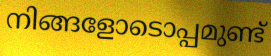
നിങ്ങളോടൊപ്പമുണ്ട്